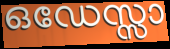
ഒഡേസ്സാ